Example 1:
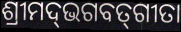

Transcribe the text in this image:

ଶ୍ରୀମଦ୍‌ଭଗବତ୍‌ଗୀତା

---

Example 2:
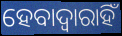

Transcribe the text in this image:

ହେବାଦ୍ଵାରାହିଁ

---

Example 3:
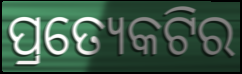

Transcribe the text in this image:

ପ୍ରତ୍ୟେକଟିର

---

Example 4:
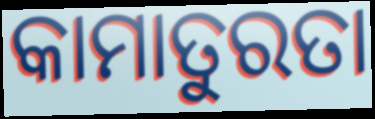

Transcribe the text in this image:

କାମାତୁରତା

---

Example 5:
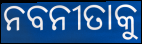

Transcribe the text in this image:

ନବନୀତାକୁ